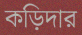
কড়িদার